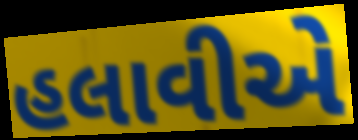
હલાવીએ